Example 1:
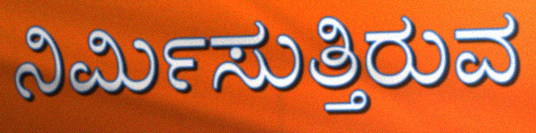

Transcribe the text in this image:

ನಿರ್ಮಿಸುತ್ತಿರುವ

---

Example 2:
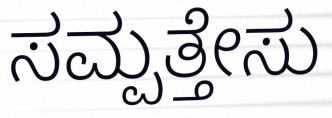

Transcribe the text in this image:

ಸಮ್ಪತ್ತೇಸು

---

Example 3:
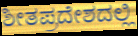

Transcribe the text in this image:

ಶೀತಪ್ರದೇಶದಲ್ಲಿ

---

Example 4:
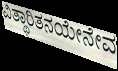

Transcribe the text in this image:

ವಿತ್ಥಾರಿತನಯೇನೇವ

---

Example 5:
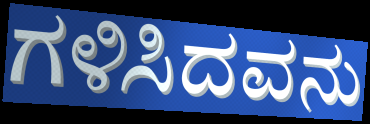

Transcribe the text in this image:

ಗಳಿಸಿದವನು